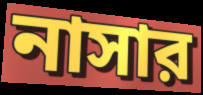
নাসার